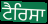
ਟੈਰਿਸਾ